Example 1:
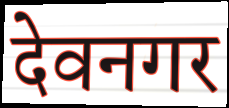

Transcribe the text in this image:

देवनगर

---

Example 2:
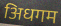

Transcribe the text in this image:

अिधगम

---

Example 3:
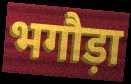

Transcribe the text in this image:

भगौड़ा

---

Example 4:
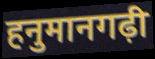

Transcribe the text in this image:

हनुमानगढ़ी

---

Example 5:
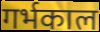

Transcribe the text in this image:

गर्भकाल